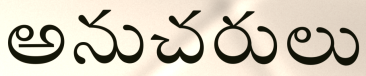
అనుచరులు